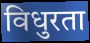
विधुरता